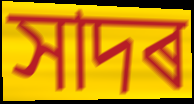
সাদৰ